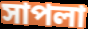
সাপলা